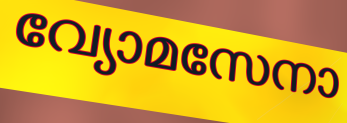
വ്യോമസേനാ